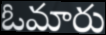
ఓమారు